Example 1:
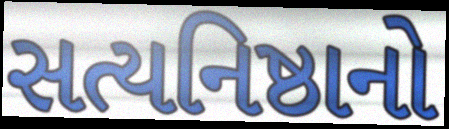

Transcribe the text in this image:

સત્યનિષ્ઠાનો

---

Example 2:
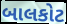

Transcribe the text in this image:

બાલકોટ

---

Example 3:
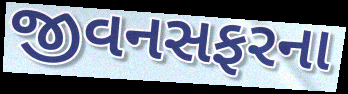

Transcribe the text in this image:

જીવનસફરના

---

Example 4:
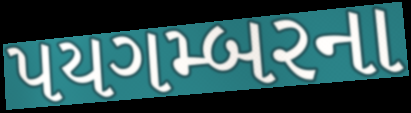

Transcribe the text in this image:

પયગમ્બરના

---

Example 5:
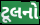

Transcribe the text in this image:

ટૂલનો